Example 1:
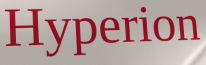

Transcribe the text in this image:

Hyperion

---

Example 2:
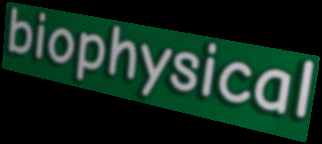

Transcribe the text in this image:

biophysical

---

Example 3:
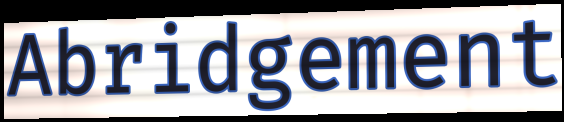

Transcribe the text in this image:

Abridgement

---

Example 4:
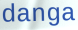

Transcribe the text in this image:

danga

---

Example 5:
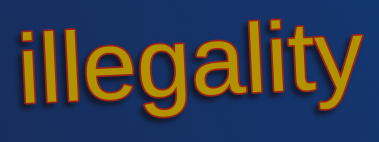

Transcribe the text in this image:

illegality